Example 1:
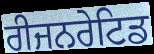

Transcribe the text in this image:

ਰੀਜਨਰੇਟਿਡ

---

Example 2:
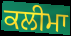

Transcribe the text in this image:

ਕਲੀਮਾ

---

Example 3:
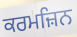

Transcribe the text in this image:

ਕਰਮਜ਼ਿਨ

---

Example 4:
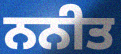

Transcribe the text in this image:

ਨਨੀਤ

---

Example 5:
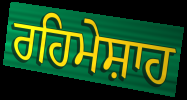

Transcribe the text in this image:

ਰਹਿਮੇਸ਼ਾਹ